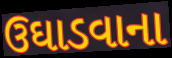
ઉઘાડવાના